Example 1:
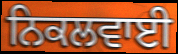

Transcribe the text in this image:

ਨਿਕਲਵਾਈ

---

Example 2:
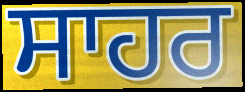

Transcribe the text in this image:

ਸਾਹਰ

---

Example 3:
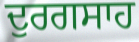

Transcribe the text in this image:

ਦੁਰਗਸਾਹ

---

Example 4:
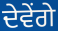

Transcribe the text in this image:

ਦੇਵੇਂਗੇ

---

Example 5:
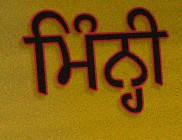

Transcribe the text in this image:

ਮਿੰਨ੍ਹੀ